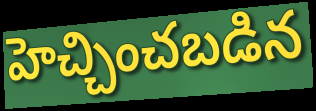
హెచ్చించబడిన